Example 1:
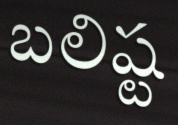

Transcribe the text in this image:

బలిష్ట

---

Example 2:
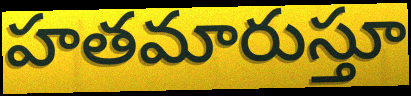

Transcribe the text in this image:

హతమారుస్తూ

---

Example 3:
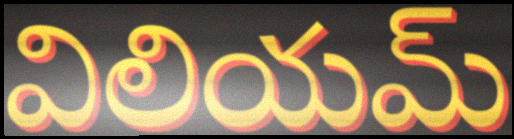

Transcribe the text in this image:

విలియమ్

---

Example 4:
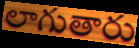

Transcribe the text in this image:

లాగుతారు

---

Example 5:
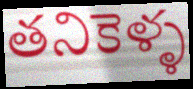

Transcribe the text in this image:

తనికెళ్ళ